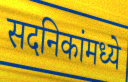
सदनिकांमध्ये